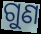
ଗୁଣ